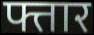
फ्तार